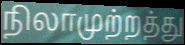
நிலாமுற்றத்து